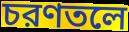
চরণতলে